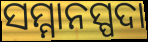
ସମ୍ମାନସ୍ପଦା